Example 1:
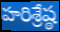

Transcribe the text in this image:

హరిశ్రేష్ఠ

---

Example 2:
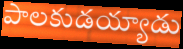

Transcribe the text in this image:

పాలకుడయ్యాడు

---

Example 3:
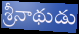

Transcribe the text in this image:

శ్రీనాథుడు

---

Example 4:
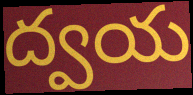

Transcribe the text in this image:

ద్వయ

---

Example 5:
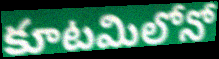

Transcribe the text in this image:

కూటమిలోనో